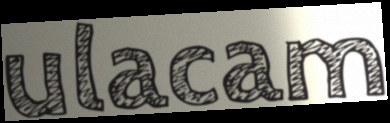
ulacam